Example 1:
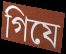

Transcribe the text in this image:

গিযে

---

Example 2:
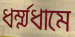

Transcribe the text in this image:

ধর্ম্মধামে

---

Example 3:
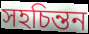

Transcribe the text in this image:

সহচিন্তন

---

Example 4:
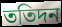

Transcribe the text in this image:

ততিদন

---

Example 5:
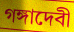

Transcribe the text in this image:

গঙ্গাদেবী